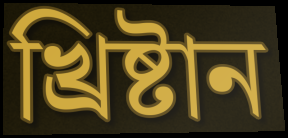
খ্ৰিষ্টান